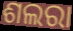
ଶଲରା